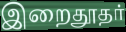
இறைதூதர்